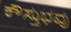
ಕೌಸ್ತುಭವು